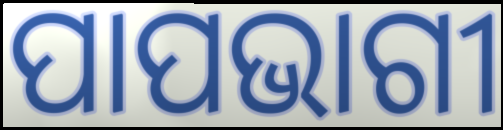
ପାପଭାଗୀ